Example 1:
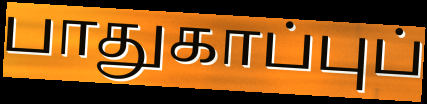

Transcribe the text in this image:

பாதுகாப்புப்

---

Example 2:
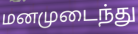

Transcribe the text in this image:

மனமுடைந்து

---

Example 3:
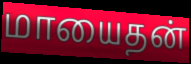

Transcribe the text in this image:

மாயைதன்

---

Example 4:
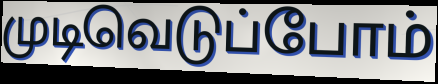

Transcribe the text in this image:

முடிவெடுப்போம்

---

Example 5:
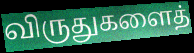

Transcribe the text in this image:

விருதுகளைத்